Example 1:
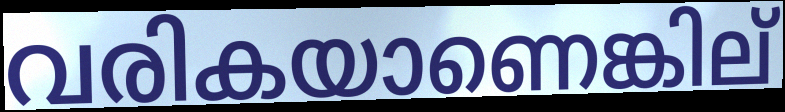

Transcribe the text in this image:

വരികയാണെങ്കില്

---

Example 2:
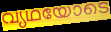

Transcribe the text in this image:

വ്യഥയോടെ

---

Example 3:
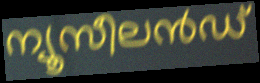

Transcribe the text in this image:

ന്യൂസീലൻഡ്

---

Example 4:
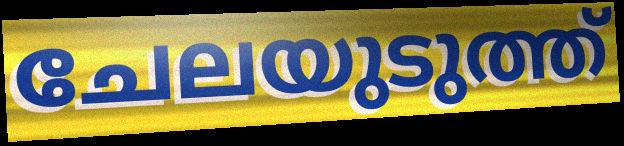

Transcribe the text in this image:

ചേലയുടുത്ത്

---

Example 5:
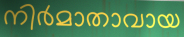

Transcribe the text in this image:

നിർമാതാവായ